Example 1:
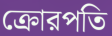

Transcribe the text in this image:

ক্রোরপতি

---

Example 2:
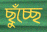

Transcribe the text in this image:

ছুঁচ্ছে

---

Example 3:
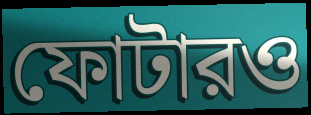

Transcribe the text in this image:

ফোটারও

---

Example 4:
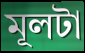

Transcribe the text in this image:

মূলটা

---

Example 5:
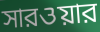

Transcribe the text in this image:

সারওয়ার